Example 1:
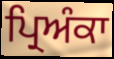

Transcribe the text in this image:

ਪ੍ਰਿਅੰਕਾ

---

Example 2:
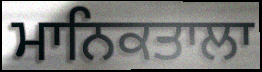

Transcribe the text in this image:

ਮਾਨਿਕਤਾਲਾ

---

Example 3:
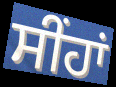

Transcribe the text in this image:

ਸੀਂਹਾਂ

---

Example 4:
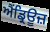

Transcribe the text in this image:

ਐਂਡ੍ਰਿਊਜ਼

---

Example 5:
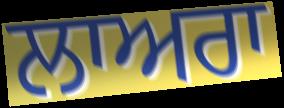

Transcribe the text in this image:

ਲਾਅਰਾ